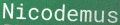
Nicodemus